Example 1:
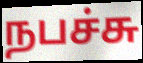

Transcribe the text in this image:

நபச்சு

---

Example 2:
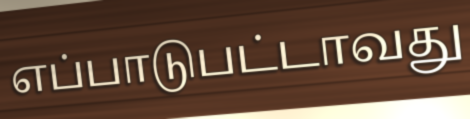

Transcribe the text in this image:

எப்பாடுபட்டாவது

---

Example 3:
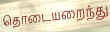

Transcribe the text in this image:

தொடையறைந்து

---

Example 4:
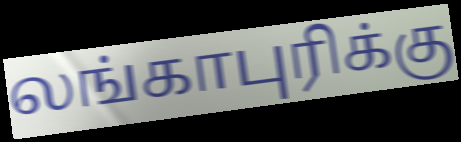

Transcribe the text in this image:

லங்காபுரிக்கு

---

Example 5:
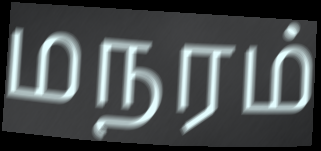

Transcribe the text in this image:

மநரம்